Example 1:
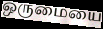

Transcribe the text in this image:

ஒருமையை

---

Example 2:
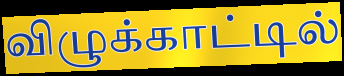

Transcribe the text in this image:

விழுக்காட்டில்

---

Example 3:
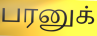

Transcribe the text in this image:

பரனுக்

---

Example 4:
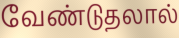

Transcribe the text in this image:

வேண்டுதலால்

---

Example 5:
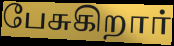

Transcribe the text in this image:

பேசுகிறார்